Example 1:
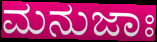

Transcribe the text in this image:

ಮನುಜಾಃ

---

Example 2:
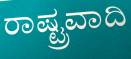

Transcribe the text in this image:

ರಾಷ್ಟ್ರವಾದಿ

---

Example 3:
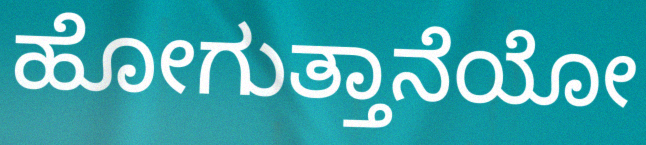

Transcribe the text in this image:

ಹೋಗುತ್ತಾನೆಯೋ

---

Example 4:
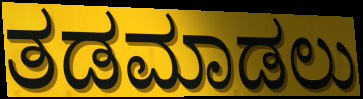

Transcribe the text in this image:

ತಡಮಾಡಲು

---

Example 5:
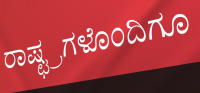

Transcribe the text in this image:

ರಾಷ್ಟ್ರಗಳೊಂದಿಗೂ